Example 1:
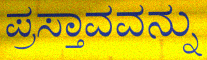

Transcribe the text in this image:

ಪ್ರಸ್ತಾವವನ್ನು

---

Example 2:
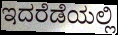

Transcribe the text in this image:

ಇದರೆಡೆಯಲ್ಲಿ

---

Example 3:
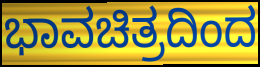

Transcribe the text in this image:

ಭಾವಚಿತ್ರದಿಂದ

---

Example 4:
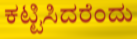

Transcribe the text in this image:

ಕಟ್ಟಿಸಿದರೆಂದು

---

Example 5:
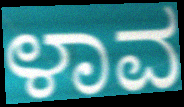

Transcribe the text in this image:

ಳಾವ